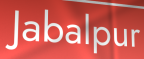
Jabalpur